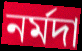
নৰ্মদা